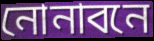
নোনাবনে